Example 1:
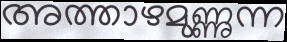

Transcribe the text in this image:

അത്താഴമുണ്ണുന്ന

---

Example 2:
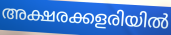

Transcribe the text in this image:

അക്ഷരക്കളരിയിൽ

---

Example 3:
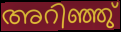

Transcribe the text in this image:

അറിഞ്ഞു്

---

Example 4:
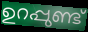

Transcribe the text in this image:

ഉറപ്പുണ്ട്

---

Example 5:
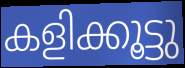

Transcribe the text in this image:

കളിക്കൂട്ടു